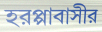
হরপ্পাবাসীর